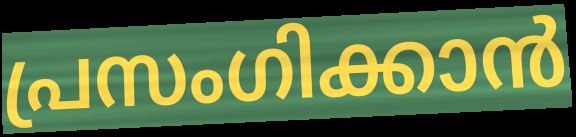
പ്രസംഗിക്കാൻ